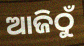
ଆଜିଠୁଁ